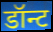
डॉन्ट